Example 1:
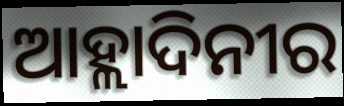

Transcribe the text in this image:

ଆହ୍ଲାଦିନୀର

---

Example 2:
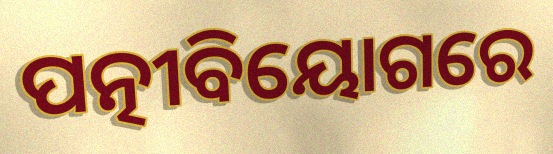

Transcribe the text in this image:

ପତ୍ନୀବିୟୋଗରେ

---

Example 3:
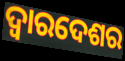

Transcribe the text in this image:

ଦ୍ୱାରଦେଶର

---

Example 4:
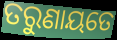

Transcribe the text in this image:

ତରୁଣାୟତେ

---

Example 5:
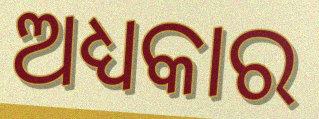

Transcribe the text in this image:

ଅଧ୍ଯକାର